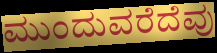
ಮುಂದುವರೆದೆವು